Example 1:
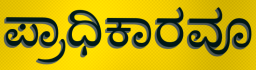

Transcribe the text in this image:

ಪ್ರಾಧಿಕಾರವೂ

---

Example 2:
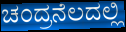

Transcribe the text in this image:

ಚಂದ್ರನೆಲದಲ್ಲಿ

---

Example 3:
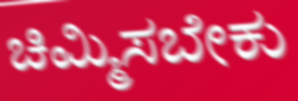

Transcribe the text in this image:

ಚಿಮ್ಮಿಸಬೇಕು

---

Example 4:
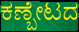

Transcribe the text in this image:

ಕಣ್ಬೇಟದ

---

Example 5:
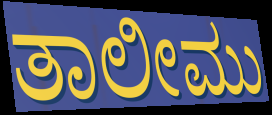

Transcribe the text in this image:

ತಾಲೀಮು